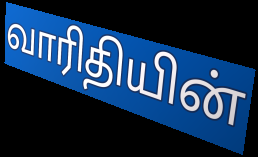
வாரிதியின்